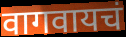
वागवायचं